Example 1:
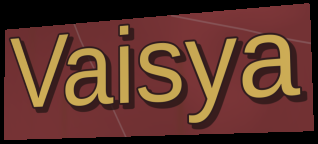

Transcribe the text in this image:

Vaisya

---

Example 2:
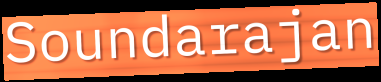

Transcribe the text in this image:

Soundarajan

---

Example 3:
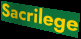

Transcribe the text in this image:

Sacrilege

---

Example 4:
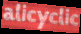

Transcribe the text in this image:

alicyclic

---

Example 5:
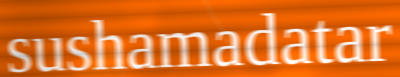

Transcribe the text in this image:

sushamadatar